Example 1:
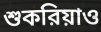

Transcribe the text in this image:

শুকরিয়াও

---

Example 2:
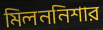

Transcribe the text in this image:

মিলননিশার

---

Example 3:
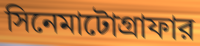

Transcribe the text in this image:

সিনেমাটোগ্রাফার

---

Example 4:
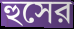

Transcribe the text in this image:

হুসের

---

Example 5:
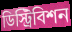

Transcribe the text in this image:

ডিস্ট্রিবিশন